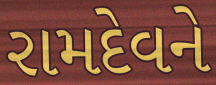
રામદેવને